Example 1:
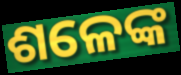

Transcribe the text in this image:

ଶଳେଙ୍କ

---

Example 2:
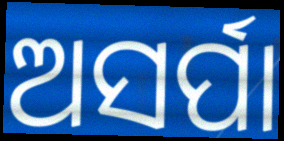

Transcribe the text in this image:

ଅସର୍ପା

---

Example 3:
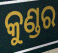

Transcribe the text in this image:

କୁଣ୍ଡର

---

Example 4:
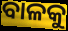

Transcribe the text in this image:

ବାଳକୁ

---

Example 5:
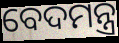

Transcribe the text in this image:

ବେଦମନ୍ତ୍ର